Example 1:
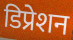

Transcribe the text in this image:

डिप्रेशन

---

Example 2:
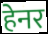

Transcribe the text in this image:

हेनर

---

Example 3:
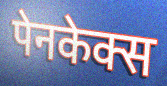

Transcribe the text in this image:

पेनकेक्स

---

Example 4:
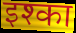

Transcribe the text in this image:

इश्का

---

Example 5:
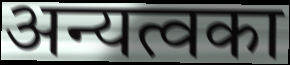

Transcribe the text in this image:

अन्यत्वका